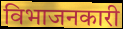
विभाजनकारी